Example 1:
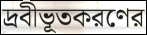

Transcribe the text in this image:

দ্রবীভূতকরণের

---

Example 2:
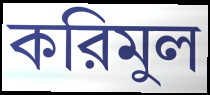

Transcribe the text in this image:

করিমুল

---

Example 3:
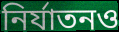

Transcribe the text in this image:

নির্যাতনও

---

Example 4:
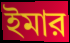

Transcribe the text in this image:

ইমার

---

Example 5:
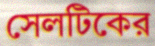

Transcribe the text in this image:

সেলটিকের